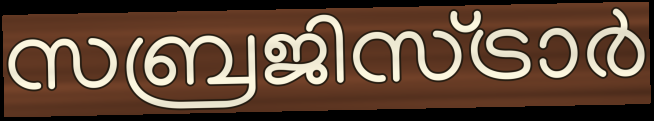
സബ്രജിസ്ട്രാർ